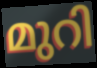
മുറി